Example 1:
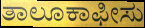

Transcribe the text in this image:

ತಾಲೂಕಾಫೀಸು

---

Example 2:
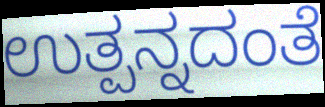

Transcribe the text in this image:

ಉತ್ಪನ್ನದಂತೆ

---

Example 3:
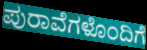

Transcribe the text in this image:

ಪುರಾವೆಗಳೊಂದಿಗೆ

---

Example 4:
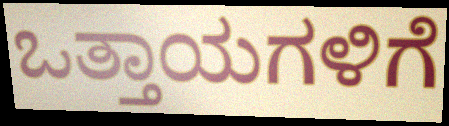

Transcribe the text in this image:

ಒತ್ತಾಯಗಳಿಗೆ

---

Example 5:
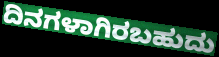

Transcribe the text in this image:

ದಿನಗಳಾಗಿರಬಹುದು